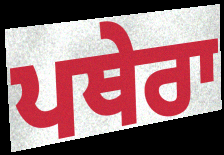
ਪਥੇਰਾ